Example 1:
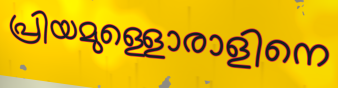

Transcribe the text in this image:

പ്രിയമുള്ളൊരാളിനെ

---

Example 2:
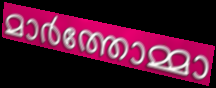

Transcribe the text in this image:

മാർത്തോമ്മാ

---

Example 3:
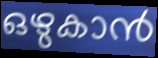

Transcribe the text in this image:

ഒഴുകാൻ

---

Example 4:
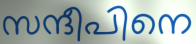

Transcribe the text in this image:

സന്ദീപിനെ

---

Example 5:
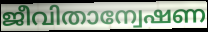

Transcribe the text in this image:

ജീവിതാന്വേഷണ